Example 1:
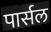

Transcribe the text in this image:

पार्सल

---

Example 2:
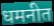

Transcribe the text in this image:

धमनीत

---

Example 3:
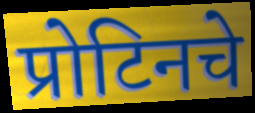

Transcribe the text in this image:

प्रोटिनचे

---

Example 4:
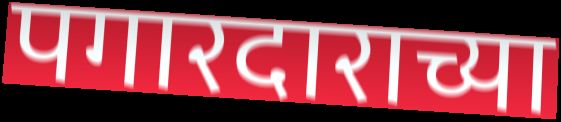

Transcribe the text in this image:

पगारदाराच्या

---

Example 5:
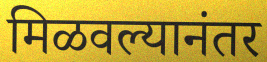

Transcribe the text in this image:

मिळवल्यानंतर